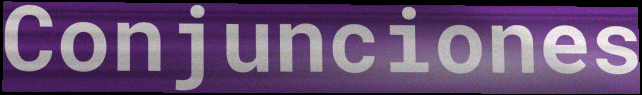
Conjunciones